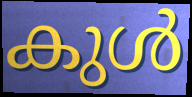
കുൾ